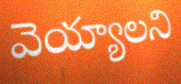
వెయ్యాలని